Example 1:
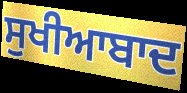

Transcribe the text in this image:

ਸੁਖੀਆਬਾਦ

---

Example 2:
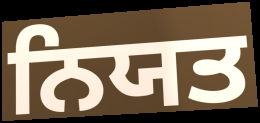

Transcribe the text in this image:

ਨਿਯਤ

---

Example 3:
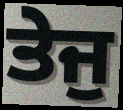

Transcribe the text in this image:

ਤੇਜੁ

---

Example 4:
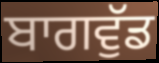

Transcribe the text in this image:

ਬਾਗਵੁੱਡ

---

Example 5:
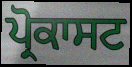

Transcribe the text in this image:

ਪ੍ਰੋਕਾਸਟ